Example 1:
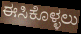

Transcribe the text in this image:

ಈಸಿಕೊಳ್ಳಲು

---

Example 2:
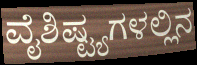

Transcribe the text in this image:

ವೈಶಿಷ್ಟ್ಯಗಳಲ್ಲಿನ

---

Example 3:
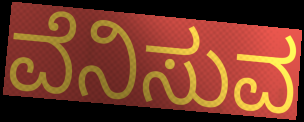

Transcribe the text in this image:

ವೆನಿಸುವ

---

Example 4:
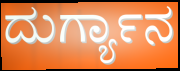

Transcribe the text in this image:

ದುರ್ಗ್ಯಾನ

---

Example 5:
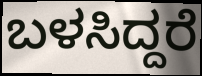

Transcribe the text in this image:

ಬಳಸಿದ್ದರೆ